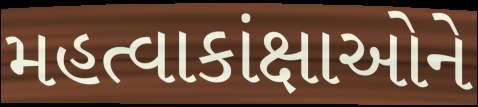
મહત્વાકાંક્ષાઓને